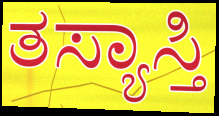
ತಸ್ಯಾಸ್ತಿ